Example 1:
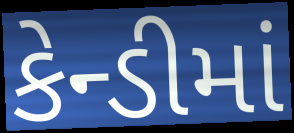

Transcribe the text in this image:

કેન્ડીમાં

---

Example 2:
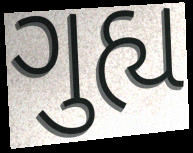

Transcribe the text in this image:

ગુહ્ય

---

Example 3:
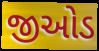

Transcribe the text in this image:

જીઓડ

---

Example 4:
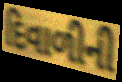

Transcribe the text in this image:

દિવાળીની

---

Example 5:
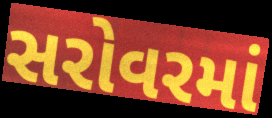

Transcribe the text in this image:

સરોવરમાં